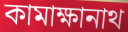
কামাক্ষানাথ